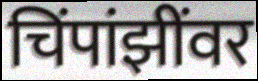
चिंपांझींवर